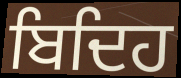
ਬਿਦਿਹ